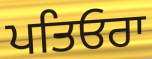
ਪਤਿਓਰਾ